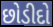
છોડીદો